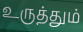
உருத்தும்